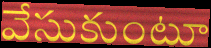
వేసుకుంటూ